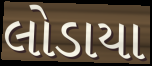
લોડાયા